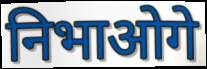
निभाओगे